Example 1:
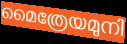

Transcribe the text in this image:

മൈത്രേയമുനി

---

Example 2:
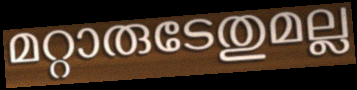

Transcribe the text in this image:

മറ്റാരുടേതുമല്ല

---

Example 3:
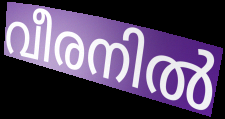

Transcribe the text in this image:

വീരനിൽ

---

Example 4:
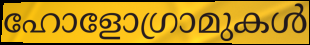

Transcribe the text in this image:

ഹോളോഗ്രാമുകൾ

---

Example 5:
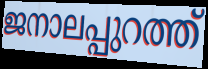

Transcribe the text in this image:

ജനാലപ്പുറത്ത്